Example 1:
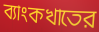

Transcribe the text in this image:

ব্যাংকখাতের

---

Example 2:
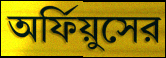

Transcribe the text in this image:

অর্ফিয়ুসের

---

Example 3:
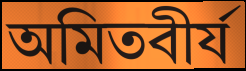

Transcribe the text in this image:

অমিতবীর্য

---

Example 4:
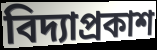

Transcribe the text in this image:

বিদ্যাপ্রকাশ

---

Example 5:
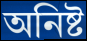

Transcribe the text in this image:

অনিষ্ট